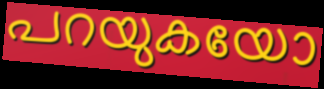
പറയുകയോ